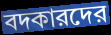
বদকারদের